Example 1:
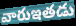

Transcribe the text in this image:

వారుఇతడు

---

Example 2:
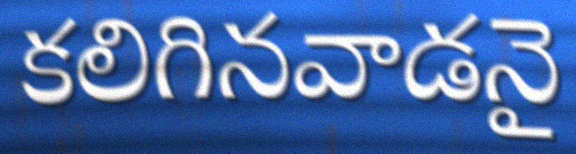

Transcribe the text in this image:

కలిగినవాడనై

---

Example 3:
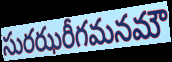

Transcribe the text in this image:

సురఝరీగమనమౌ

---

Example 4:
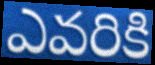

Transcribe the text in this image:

ఎవరికి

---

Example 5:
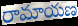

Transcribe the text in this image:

రామాయణ